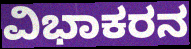
ವಿಭಾಕರನ